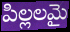
పిల్లలమై